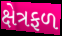
ક્ષેત્રફળ